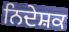
ਨਿਦੇਸ਼ਕ